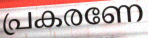
പ്രകരണേ